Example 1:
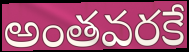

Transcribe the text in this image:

అంతవరకే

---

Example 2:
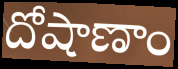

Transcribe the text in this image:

దోషాణాం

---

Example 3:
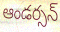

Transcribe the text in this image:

ఆండర్సన్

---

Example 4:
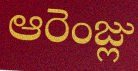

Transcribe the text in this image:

ఆరెంజ్లు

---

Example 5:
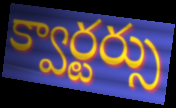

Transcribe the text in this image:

క్వార్టర్సు